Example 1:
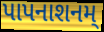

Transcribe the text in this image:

પાપનાશનમ્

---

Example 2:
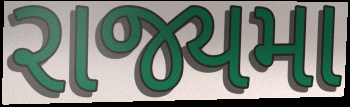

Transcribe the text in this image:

રાજ્યમા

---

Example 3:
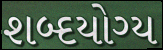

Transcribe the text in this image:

શબ્દયોગ્ય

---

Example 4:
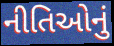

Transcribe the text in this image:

નીતિઓનું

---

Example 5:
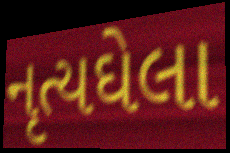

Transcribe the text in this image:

નૃત્યઘેલા